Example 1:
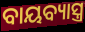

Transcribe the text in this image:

ବାୟବ୍ୟାସ୍ତ୍ର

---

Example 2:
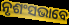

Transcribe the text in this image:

ନୃଶଂସଭାବେ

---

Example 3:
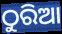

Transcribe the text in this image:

ଠୁରିଆ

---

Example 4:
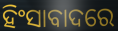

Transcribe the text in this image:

ହିଂସାବାଦରେ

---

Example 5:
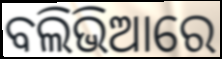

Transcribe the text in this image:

ବଲିଭିଆରେ